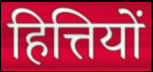
हित्तियों